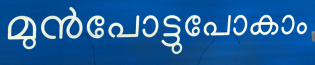
മുൻപോട്ടുപോകാം